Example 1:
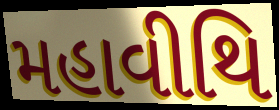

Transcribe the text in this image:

મહાવીથિ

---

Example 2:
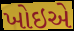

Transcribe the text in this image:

ખોઇએ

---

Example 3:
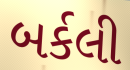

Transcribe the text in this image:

બર્કલી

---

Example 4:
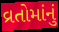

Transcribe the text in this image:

વ્રતોમાંનું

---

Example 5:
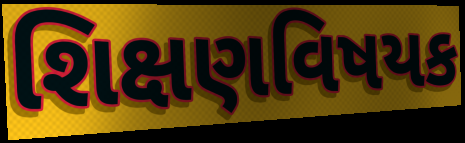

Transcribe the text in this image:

શિક્ષણવિષયક